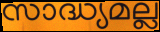
സാദ്ധ്യമല്ല